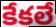
కేకలే